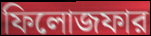
ফিলোজফার